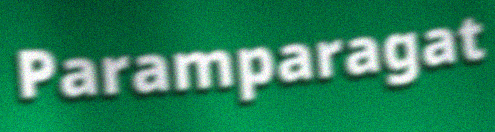
Paramparagat